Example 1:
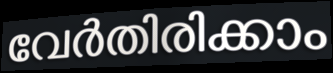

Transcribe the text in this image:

വേർതിരിക്കാം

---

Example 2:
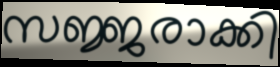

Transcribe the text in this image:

സജ്ജരാക്കി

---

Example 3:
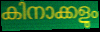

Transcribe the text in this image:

കിനാക്കളും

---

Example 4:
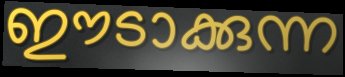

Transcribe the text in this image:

ഈടാക്കുന്ന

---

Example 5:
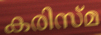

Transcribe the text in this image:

കരിസ്മ